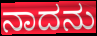
ನಾದನು